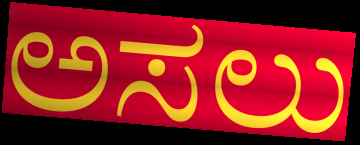
ಅಸಲು